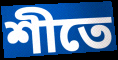
শীতে